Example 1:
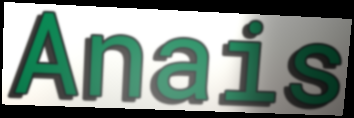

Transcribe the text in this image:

Anais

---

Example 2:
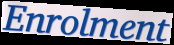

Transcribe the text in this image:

Enrolment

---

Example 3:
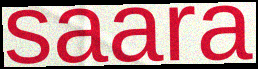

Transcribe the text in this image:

saara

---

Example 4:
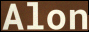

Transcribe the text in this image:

Alon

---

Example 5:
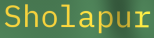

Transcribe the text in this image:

Sholapur